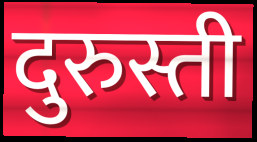
दुरुस्ती